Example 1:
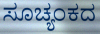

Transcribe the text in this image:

ಸೂಚ್ಯಂಕದ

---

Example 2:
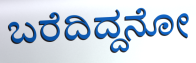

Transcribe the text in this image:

ಬರೆದಿದ್ದನೋ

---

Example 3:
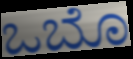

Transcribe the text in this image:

ಒಬೊ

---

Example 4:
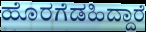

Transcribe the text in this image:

ಹೊರಗೆಡಹಿದ್ದಾರೆ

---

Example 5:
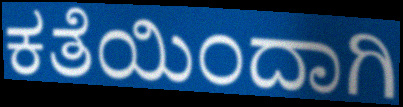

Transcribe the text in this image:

ಕತೆಯಿಂದಾಗಿ